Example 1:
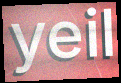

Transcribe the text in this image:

yeil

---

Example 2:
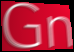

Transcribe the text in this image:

Gn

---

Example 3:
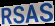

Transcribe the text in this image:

RSAS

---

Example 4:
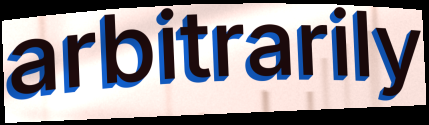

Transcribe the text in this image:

arbitrarily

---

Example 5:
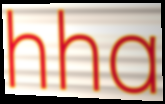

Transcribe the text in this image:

hha